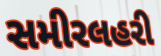
સમીરલહરી